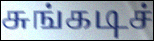
சுங்கடிச்